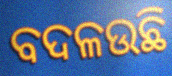
ବଦଳଉଛି